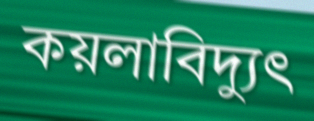
কয়লাবিদ্যুৎ